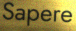
Sapere